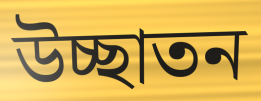
উচ্ছাতন